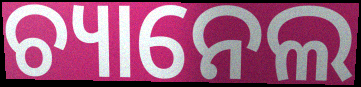
ଚ୍ୟାନେଲ